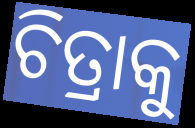
ଚିତ୍ରାକୁ